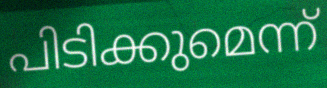
പിടിക്കുമെന്ന്